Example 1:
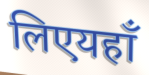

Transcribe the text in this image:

लिएयहाँ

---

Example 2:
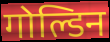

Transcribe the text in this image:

गोल्डिन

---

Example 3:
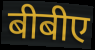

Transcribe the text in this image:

बीबीए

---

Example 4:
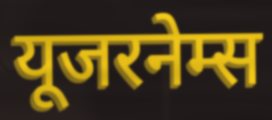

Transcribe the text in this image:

यूजरनेम्स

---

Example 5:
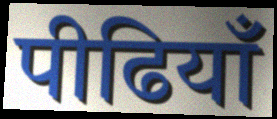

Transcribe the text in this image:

पीढियाँ